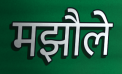
मझौले